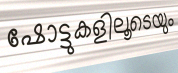
ഷോട്ടുകളിലൂടെയും